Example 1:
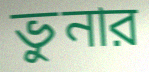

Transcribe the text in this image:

ভুনার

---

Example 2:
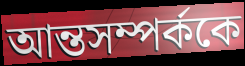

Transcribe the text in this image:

আন্তসম্পর্ককে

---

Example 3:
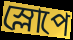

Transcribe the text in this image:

স্লোপে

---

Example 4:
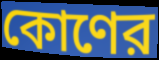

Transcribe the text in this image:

কোণের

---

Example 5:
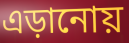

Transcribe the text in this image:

এড়ানোয়